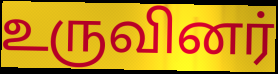
உருவினர்